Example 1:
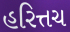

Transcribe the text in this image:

હરિત્તચ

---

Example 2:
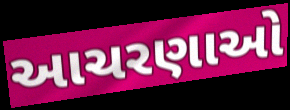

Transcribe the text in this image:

આચરણાઓ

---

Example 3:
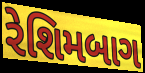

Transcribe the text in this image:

રેશિમબાગ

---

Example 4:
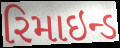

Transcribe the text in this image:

રિમાઇન્ડ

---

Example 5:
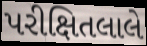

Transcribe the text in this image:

પરીક્ષિતલાલે